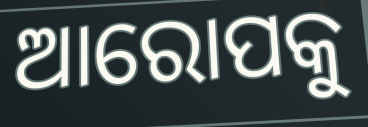
ଆରୋପକୁ